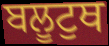
ਬਲੂਟੁਥ